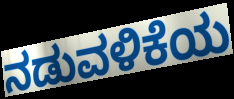
ನಡುವಳಿಕೆಯ